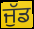
ਜੁੱਡ